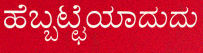
ಹೆಬ್ಬಟ್ಟೆಯಾದುದು